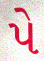
પે